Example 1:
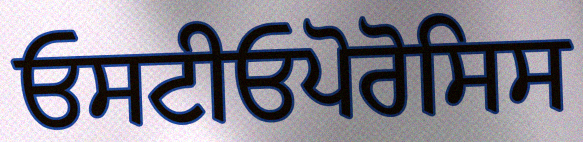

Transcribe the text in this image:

ਓਸਟੀਓਪੋਰੋਸਿਸ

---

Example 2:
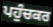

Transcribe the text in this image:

ਪਹੁੰਚਕਰ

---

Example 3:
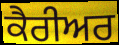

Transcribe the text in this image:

ਕੈਰੀਅਰ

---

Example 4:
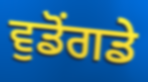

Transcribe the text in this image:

ਵੁਡੋਂਗਡੇ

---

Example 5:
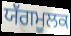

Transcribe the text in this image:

ਯੱਗਮੂਲਕ